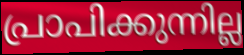
പ്രാപിക്കുന്നില്ല